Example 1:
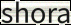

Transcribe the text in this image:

shora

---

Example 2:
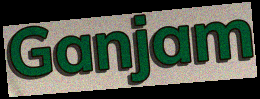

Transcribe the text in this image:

Ganjam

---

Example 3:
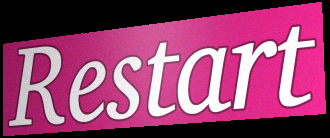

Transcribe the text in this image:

Restart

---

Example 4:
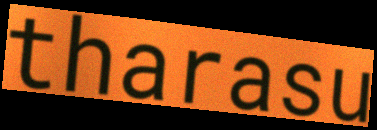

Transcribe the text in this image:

tharasu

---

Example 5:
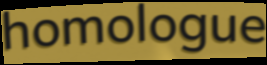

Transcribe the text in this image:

homologue